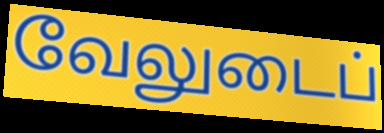
வேலுடைப்